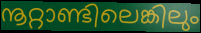
നൂറ്റാണ്ടിലെങ്കിലും